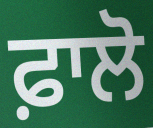
ਫ਼ਾਲੋ